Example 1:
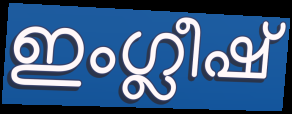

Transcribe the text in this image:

ഇംഗ്ലീഷ്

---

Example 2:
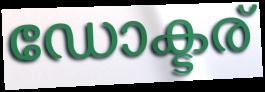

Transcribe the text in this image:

ഡോക്ടര്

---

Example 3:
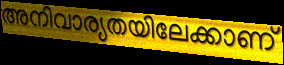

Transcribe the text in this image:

അനിവാര്യതയിലേക്കാണ്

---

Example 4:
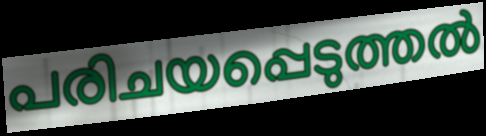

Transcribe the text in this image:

പരിചയപ്പെടുത്തൽ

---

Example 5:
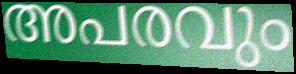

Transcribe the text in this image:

അപരവും